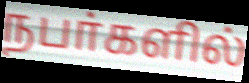
நபர்களில்